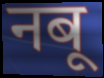
नबू